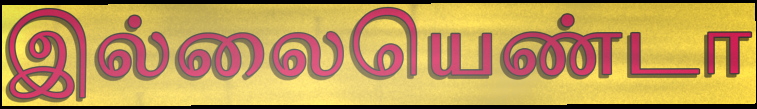
இல்லையெண்டா